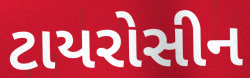
ટાયરોસીન